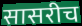
सासरीच